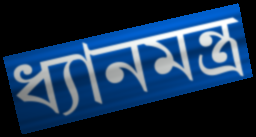
ধ্যানমন্ত্ৰ